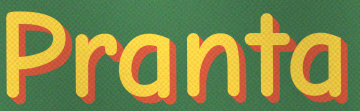
Pranta